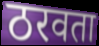
ठरवता